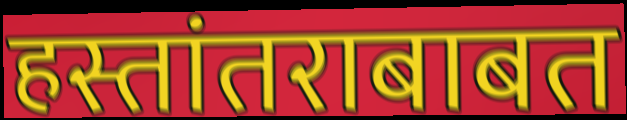
हस्तांतराबाबत